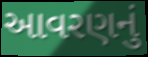
આવરણનું